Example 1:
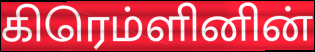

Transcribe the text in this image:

கிரெம்ளினின்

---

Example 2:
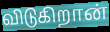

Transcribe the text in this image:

விடுகிறான்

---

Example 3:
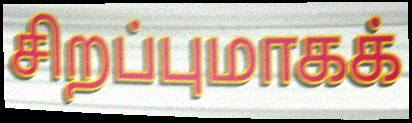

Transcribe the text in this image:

சிறப்புமாகக்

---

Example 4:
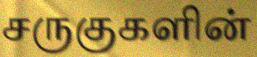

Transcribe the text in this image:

சருகுகளின்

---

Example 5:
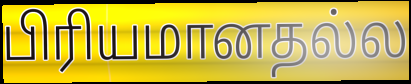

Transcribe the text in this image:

பிரியமானதல்ல